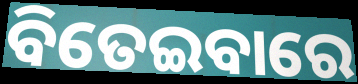
ବିତେଇବାରେ